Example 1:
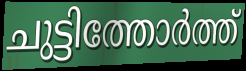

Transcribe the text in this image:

ചുട്ടിത്തോർത്ത്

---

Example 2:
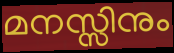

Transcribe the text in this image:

മനസ്സിനും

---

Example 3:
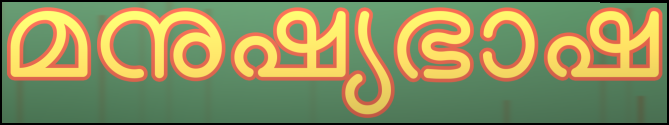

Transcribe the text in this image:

മനുഷ്യഭാഷ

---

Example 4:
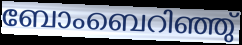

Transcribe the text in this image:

ബോംബെറിഞ്ഞു്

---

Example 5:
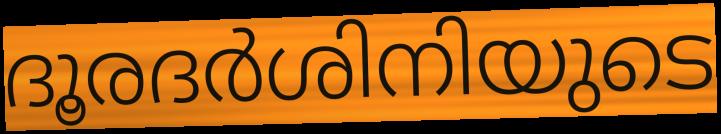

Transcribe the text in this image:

ദൂരദർശിനിയുടെ